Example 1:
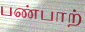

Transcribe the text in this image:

பண்பாற்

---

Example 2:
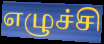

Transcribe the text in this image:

எழுச்சி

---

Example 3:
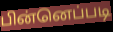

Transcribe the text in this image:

பின்னெப்படி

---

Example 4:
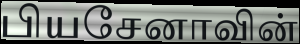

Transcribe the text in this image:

பியசேனாவின்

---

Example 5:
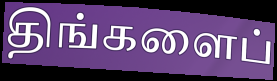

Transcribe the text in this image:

திங்களைப்